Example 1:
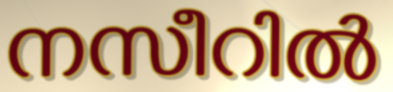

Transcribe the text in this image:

നസീറിൽ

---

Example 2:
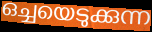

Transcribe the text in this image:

ഒച്ചയെടുക്കുന്ന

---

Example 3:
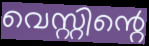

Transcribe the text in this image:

വെസ്റ്റിന്റെ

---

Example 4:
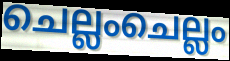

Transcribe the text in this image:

ചെല്ലംചെല്ലം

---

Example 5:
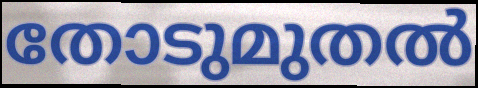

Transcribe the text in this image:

തോടുമുതൽ